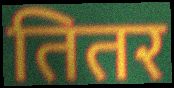
तितर